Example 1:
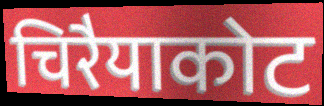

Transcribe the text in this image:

चिरैयाकोट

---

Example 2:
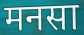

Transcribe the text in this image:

मनसा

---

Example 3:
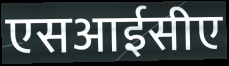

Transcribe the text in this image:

एसआईसीए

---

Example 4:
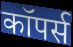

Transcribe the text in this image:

कॉपर्स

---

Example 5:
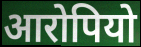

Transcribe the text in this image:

आरोपियो